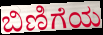
ಬಿಣಿಗೆಯ